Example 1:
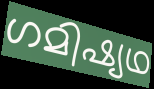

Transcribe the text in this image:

ഗമിഷ്യഥ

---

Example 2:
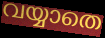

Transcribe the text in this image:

വയ്യാതെ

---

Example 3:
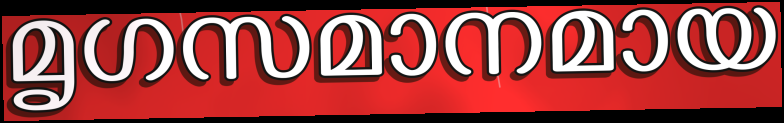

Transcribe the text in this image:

മൃഗസമാനമായ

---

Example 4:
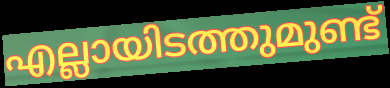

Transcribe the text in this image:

എല്ലായിടത്തുമുണ്ട്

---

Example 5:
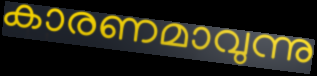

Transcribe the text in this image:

കാരണമാവുന്നു